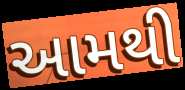
આમથી